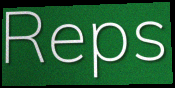
Reps